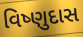
વિષ્ણુદાસ